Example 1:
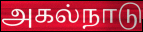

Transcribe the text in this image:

அகல்நாடு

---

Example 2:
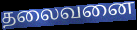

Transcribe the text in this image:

தலைவனை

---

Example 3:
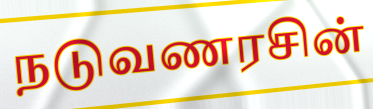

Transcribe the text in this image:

நடுவணரசின்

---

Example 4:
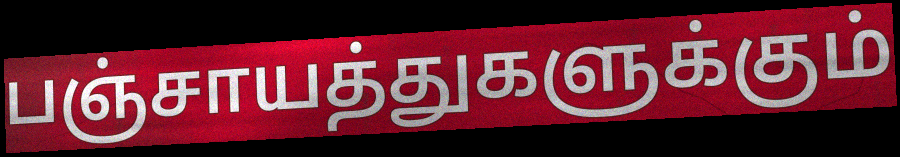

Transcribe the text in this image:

பஞ்சாயத்துகளுக்கும்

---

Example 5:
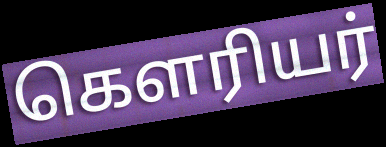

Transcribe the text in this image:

கௌரியர்